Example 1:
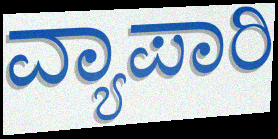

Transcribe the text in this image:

ವ್ಯಾಪಾರಿ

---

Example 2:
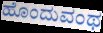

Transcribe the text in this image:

ಹೊಂದುವಂಥ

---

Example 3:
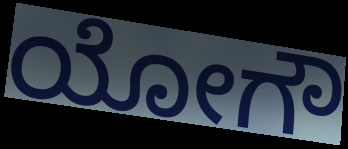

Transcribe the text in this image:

ಯೋಗೌ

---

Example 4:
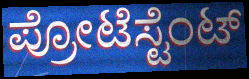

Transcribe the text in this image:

ಪ್ರೋಟೆಸ್ಟೆಂಟ್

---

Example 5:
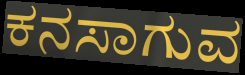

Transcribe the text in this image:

ಕನಸಾಗುವ